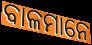
ବାଳମାନେ